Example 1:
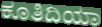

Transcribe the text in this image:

ಕೂತಿದಿಯಾ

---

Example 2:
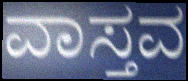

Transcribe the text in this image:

ವಾಸ್ತವ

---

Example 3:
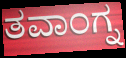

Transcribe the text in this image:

ತವಾಂಗ್ನ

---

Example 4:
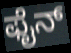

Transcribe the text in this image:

ಫೈನ್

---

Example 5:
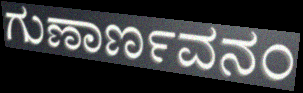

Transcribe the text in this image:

ಗುಣಾರ್ಣವನಂ